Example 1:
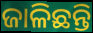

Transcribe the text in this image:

ଜାଳିଛନ୍ତି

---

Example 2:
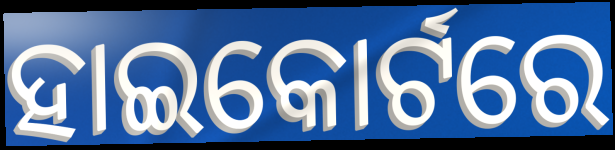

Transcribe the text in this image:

ହାଇକୋର୍ଟରେ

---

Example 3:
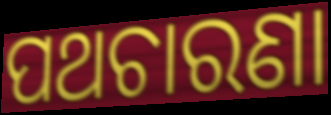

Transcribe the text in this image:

ପଥଚାରଣା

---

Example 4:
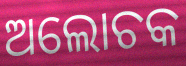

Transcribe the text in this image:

ଅଲୋଚକ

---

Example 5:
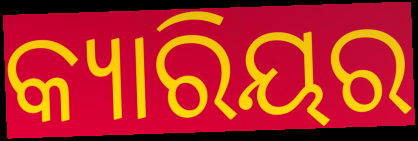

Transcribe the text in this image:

କ୍ୟାରିୟର